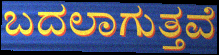
ಬದಲಾಗುತ್ತವೆ